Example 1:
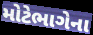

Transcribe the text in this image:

મોટેભાગેના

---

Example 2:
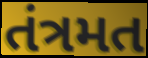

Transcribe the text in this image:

તંત્રમત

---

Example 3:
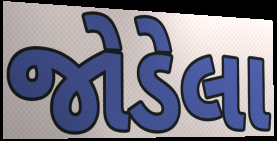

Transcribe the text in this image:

જોડેલા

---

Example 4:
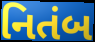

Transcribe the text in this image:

નિતંબ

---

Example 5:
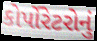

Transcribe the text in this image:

કોર્પોરેટરોનું